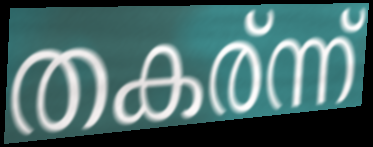
തകര്ന്ന്